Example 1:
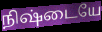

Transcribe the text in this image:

நிஷ்டையே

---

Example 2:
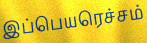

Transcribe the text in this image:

இப்பெயரெச்சம்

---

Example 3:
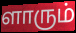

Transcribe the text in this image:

ளாரும்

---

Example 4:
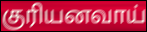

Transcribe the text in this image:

குரியனவாய்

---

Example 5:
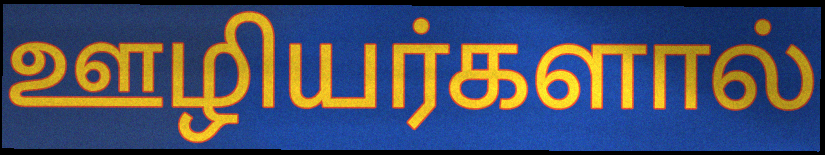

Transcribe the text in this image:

ஊழியர்களால்